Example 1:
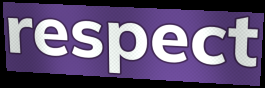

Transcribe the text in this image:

respect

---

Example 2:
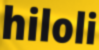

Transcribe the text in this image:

hiloli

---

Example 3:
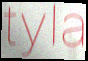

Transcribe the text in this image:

tyla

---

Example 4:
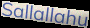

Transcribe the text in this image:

Sallallahu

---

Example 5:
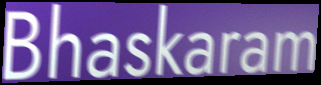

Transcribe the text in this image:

Bhaskaram